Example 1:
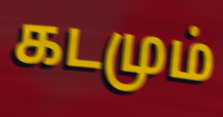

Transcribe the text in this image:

கடமும்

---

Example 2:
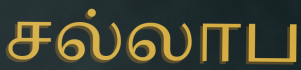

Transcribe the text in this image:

சல்லாப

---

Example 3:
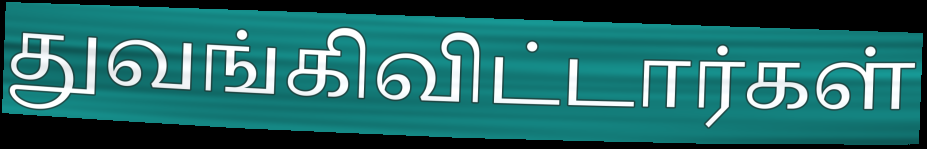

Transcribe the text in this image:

துவங்கிவிட்டார்கள்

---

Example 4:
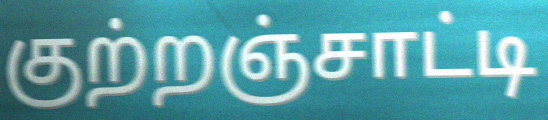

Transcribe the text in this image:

குற்றஞ்சாட்டி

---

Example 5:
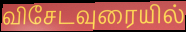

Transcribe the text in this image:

விசேடவுரையில்